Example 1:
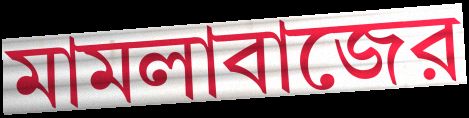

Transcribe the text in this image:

মামলাবাজের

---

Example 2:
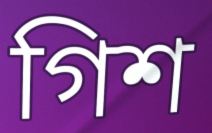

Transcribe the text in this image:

গিশ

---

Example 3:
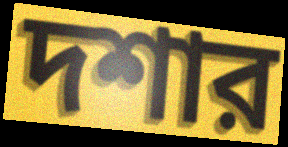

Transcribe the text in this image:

দশার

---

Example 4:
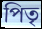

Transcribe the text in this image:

পিতৃ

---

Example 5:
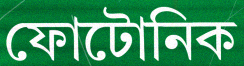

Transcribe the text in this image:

ফোটোনিক